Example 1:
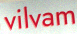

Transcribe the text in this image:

vilvam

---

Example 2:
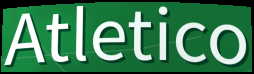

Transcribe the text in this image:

Atletico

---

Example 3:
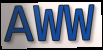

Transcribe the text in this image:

AWW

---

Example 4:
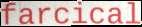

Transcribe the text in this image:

farcical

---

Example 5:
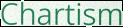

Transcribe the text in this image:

Chartism